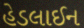
હેડલાઈન